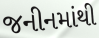
જનીનમાંથી